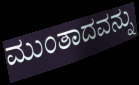
ಮುಂತಾದವನ್ನು